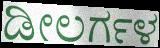
ಡೀಲರ್ಗಳ